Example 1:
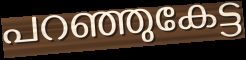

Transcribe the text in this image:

പറഞ്ഞുകേട്ട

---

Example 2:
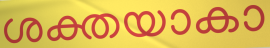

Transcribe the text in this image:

ശക്തയാകാ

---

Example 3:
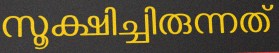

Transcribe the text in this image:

സൂക്ഷിച്ചിരുന്നത്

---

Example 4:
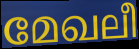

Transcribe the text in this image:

മേഖലീ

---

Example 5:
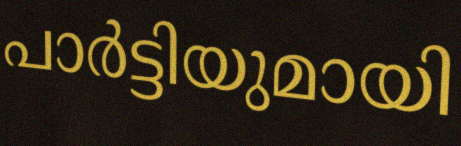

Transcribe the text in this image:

പാർട്ടിയുമായി